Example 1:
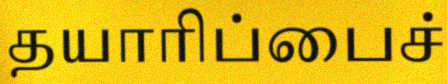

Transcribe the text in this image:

தயாரிப்பைச்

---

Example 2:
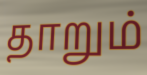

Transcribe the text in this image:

தாறும்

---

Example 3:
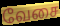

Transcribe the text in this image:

வேசை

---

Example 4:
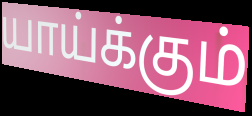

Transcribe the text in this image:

யாய்க்கும்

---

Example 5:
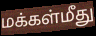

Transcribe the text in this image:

மக்கள்மீது